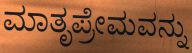
ಮಾತೃಪ್ರೇಮವನ್ನು